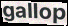
gallop